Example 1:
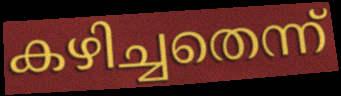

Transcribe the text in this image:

കഴിച്ചതെന്ന്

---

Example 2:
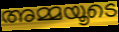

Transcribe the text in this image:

അമ്മയൂടെ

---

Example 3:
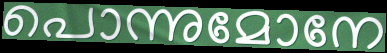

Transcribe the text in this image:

പൊന്നുമോനേ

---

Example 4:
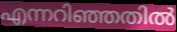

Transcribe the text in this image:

എന്നറിഞ്ഞതിൽ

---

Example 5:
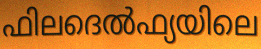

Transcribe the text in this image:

ഫിലദെൽഫ്യയിലെ